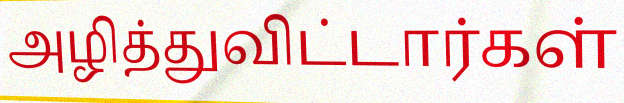
அழித்துவிட்டார்கள்